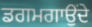
ਡਗਮਗਾਉਂਦੇ